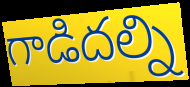
గాడిదల్ని